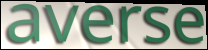
averse